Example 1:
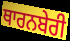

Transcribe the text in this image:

ਥਾਰਨਬੇਰੀ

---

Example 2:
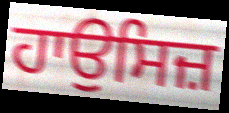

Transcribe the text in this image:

ਹਾਉਸਿਜ਼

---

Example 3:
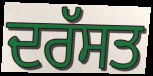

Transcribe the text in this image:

ਦਰੱਸਤ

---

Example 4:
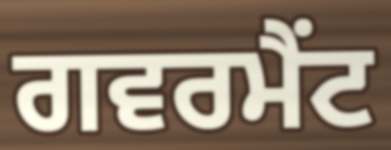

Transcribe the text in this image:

ਗਵਰਮੈਂਟ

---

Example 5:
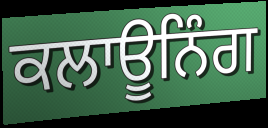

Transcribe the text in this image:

ਕਲਾਊਨਿੰਗ